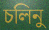
চলিনু